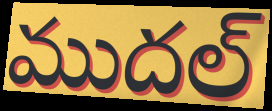
ముదల్